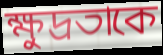
ক্ষুদ্রতাকে